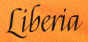
Liberia